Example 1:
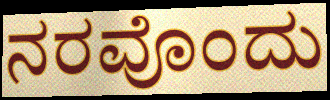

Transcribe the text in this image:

ನರವೊಂದು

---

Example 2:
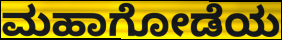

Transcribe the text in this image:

ಮಹಾಗೋಡೆಯ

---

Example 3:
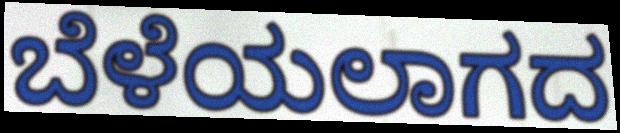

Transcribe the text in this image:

ಬೆಳೆಯಲಾಗದ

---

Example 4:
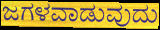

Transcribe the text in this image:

ಜಗಳವಾಡುವುದು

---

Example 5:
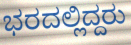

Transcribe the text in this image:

ಭರದಲ್ಲಿದ್ದರು